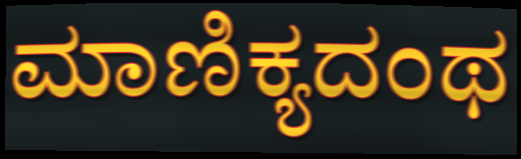
ಮಾಣಿಕ್ಯದಂಥ